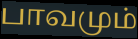
பாவமும்